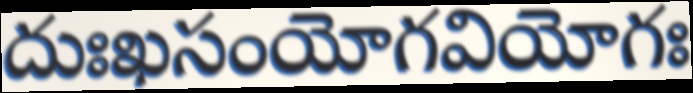
దుఃఖసంయోగవియోగః